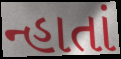
ન્હાતાં